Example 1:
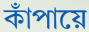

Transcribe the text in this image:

কাঁপায়ে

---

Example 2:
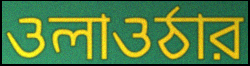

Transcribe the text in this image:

ওলাওঠার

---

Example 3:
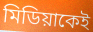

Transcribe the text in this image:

মিডিয়াকেই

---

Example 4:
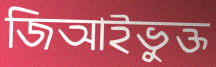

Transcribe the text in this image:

জিআইভুক্ত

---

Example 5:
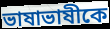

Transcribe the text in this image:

ভাষাভাষীকে